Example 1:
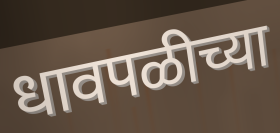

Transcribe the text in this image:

धावपळीच्या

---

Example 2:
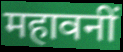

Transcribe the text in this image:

महावनीं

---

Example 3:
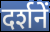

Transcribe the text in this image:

दर्शनें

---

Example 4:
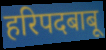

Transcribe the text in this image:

हरिपदबाबू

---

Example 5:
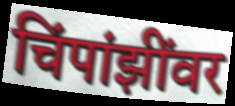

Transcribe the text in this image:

चिंपांझींवर